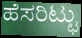
ಹೆಸರಿಟ್ಟು